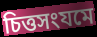
চিত্তসংযমে